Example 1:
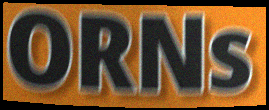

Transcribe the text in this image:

ORNs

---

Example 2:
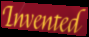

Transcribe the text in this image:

Invented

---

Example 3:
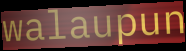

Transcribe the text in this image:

walaupun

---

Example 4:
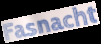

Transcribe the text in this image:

Fasnacht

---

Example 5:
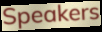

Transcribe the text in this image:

Speakers